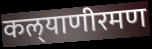
कल्याणीरमण